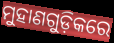
ମୁହାଣଗୁଡ଼ିକରେ